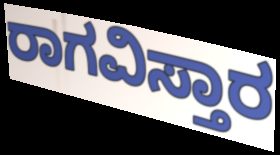
ರಾಗವಿಸ್ತಾರ